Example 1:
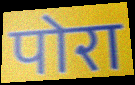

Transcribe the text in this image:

पोरा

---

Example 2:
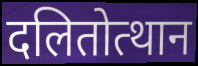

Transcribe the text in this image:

दलितोत्थान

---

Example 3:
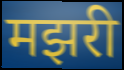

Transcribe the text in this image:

मझरी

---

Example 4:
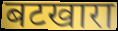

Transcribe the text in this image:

बटखारा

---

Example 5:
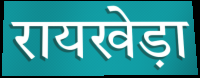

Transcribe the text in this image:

रायखेड़ा